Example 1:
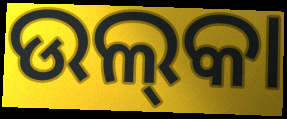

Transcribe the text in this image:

ଉଲ୍‌କା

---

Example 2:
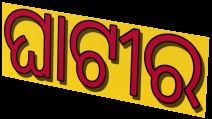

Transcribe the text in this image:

ଘାଟୀର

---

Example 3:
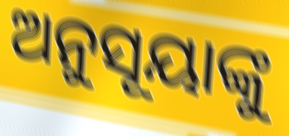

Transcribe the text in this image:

ଅନୁସୂୟାଙ୍କୁ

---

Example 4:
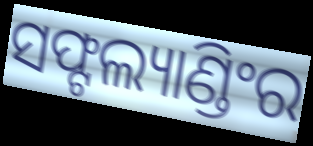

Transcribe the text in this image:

ସଫ୍ଟଲ୍ୟାଣ୍ଡିଂର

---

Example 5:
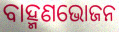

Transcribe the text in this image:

ବାହ୍ମଣଭୋଜନ